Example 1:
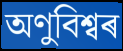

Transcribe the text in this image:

অণুবিশ্বৰ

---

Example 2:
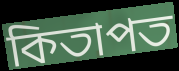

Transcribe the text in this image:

কিতাপত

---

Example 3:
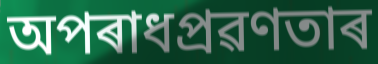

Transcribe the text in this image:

অপৰাধপ্ৰৱণতাৰ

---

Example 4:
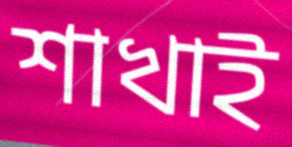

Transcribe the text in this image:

শাখাই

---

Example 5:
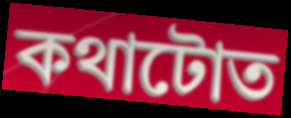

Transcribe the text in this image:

কথাটোত